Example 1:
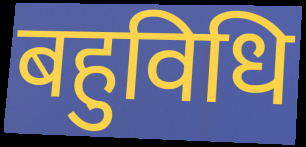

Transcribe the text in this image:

बहुविधि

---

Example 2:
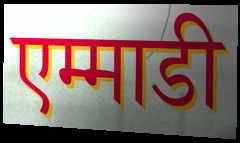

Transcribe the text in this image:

एम्माडी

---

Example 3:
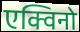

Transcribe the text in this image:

एक्विनो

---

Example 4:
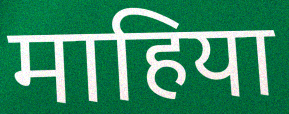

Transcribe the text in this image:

माहिया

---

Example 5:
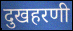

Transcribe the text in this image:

दुखहरणी